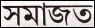
সমাজত